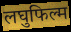
लघुफिल्म